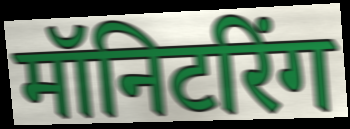
मॉनिटरिंग